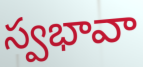
స్వభావా